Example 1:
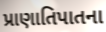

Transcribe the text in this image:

પ્રાણાતિપાતના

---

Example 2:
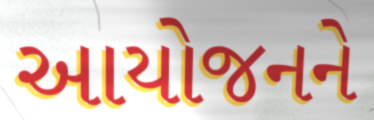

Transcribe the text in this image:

આયોજનને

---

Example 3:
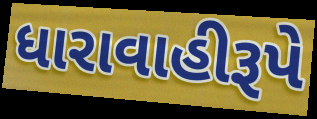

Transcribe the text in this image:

ધારાવાહીરૂપે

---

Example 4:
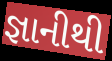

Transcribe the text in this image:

જ્ઞાનીથી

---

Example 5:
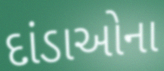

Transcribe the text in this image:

દાંડાઓના